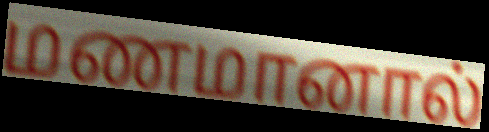
மணமானால்